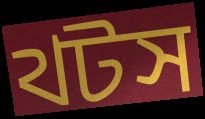
থটস